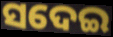
ସଦେଇ